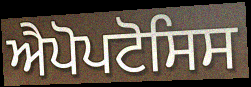
ਐਪੋਪਟੋਸਿਸ